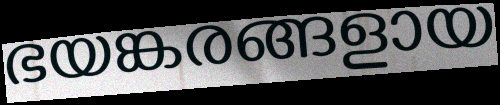
ഭയങ്കരങ്ങളായ